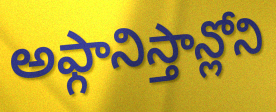
అఫ్గానిస్తాన్లోని